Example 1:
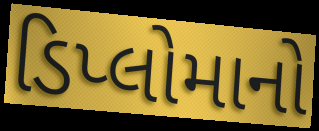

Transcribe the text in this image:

ડિપ્લોમાનો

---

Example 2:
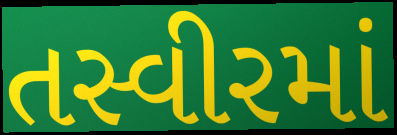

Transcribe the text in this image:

તસ્વીરમાં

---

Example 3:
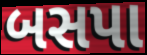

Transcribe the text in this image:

બસપા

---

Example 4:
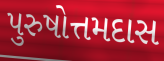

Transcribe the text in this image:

પુરુષોત્તમદાસ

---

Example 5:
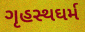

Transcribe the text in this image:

ગૃહસ્થઘર્મ